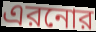
এরনোর